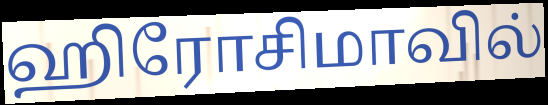
ஹிரோசிமாவில்